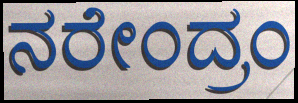
ನರೇಂದ್ರಂ